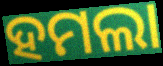
ହମଲା